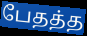
பேதத்த